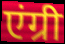
एंग्री